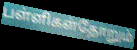
பள்ளிகள்தோறும்